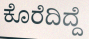
ಕೊರೆದಿದ್ದೆ